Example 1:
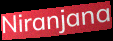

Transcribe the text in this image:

Niranjana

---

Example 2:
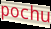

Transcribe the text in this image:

pochu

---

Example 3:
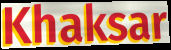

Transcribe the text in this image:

Khaksar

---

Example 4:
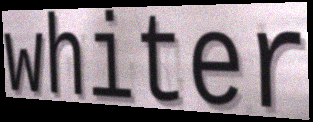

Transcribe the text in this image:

whiter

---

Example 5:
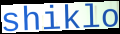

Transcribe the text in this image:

shiklo